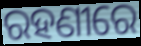
ରହଣୀରେ